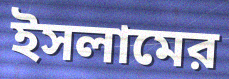
ইসলামের